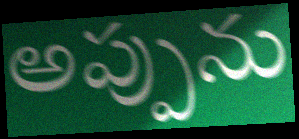
అప్పును